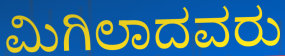
ಮಿಗಿಲಾದವರು